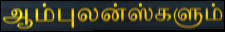
ஆம்புலன்ஸ்களும்